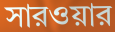
সারওয়ার